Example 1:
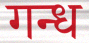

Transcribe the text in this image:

गन्ध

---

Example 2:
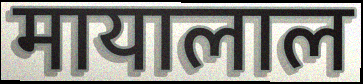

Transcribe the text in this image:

मायालाल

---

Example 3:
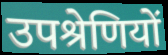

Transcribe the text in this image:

उपश्रेणियों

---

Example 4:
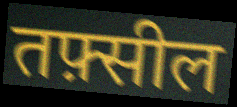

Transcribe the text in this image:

तफ़्सील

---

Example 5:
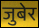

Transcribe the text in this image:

जुबेर